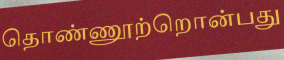
தொண்ணூற்றொன்பது